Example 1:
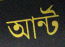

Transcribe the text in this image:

আর্ন্ট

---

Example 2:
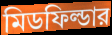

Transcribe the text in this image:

মিডফিল্ডার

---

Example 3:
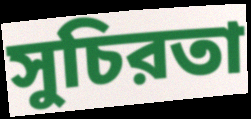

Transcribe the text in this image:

সুচিরতা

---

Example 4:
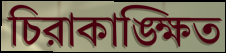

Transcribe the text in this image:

চিরাকাঙ্ক্ষিত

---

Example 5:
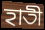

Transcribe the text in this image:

হাতী